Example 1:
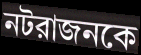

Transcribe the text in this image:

নটরাজনকে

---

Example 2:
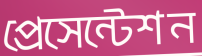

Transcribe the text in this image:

প্রেসেন্টেশন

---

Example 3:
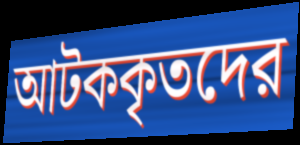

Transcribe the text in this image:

আটককৃতদের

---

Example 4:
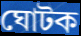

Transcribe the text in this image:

ঘোটক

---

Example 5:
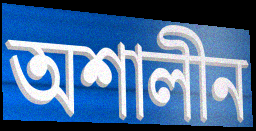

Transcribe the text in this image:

অশালীন